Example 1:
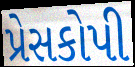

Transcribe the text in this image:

પ્રેસકોપી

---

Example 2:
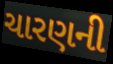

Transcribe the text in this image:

ચારણની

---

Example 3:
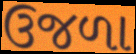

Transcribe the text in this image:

ઉજળા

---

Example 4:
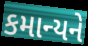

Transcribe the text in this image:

કમાન્યને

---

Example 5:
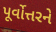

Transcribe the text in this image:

પૂર્વોત્તરને